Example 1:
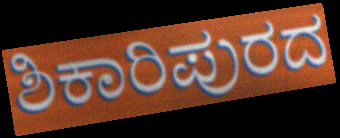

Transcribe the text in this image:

ಶಿಕಾರಿಪುರದ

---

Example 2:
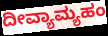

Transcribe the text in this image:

ದೀವ್ಯಾಮ್ಯಹಂ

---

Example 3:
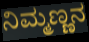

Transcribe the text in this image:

ನಿಮ್ಮಣ್ಣನ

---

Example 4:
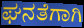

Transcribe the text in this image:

ಘನತೆಗಾಗಿ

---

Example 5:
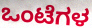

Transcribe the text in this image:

ಒಂಟೆಗಳ